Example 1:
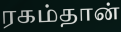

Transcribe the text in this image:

ரகம்தான்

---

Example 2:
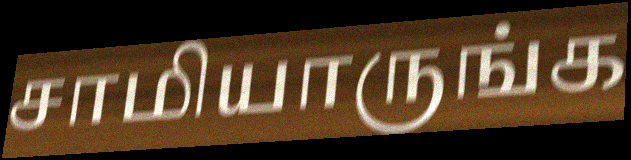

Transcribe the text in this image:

சாமியாருங்க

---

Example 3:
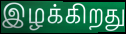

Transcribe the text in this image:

இழக்கிறது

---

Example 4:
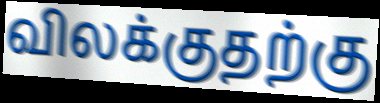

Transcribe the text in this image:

விலக்குதற்கு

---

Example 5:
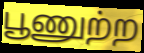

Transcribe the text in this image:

பூணுற்ற